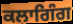
ਕਲਾਗਿੰਗ